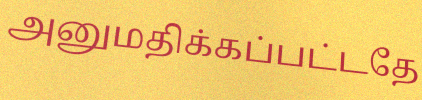
அனுமதிக்கப்பட்டதே